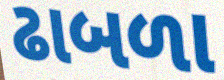
ઢાબળા